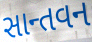
સાન્તવન